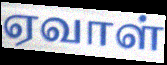
ஏவாள்